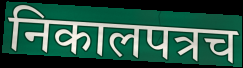
निकालपत्रच